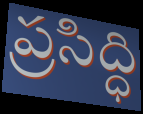
ప్రసిద్ధి